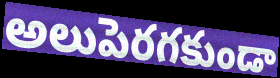
అలుపెరగకుండా